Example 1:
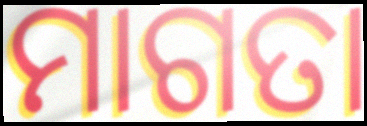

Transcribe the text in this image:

ମାଗତା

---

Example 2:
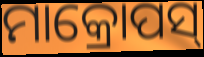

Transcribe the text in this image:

ମାକ୍ରୋପସ୍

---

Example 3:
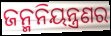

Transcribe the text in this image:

ଜନ୍ମନିୟନ୍ତ୍ରଣର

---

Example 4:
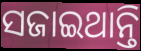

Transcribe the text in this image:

ସଜାଇଥାନ୍ତି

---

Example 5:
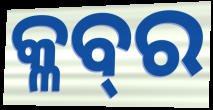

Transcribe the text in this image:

କ୍ଳବ୍‍ର